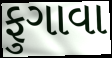
ફુગાવા